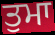
ਤੁਮਾ